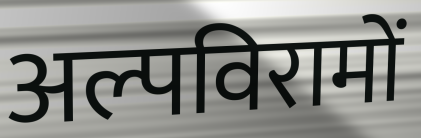
अल्पविरामों